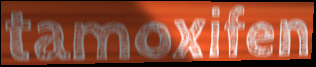
tamoxifen